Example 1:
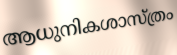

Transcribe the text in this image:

ആധുനികശാസ്ത്രം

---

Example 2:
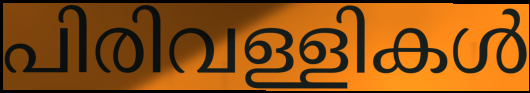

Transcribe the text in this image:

പിരിവള്ളികൾ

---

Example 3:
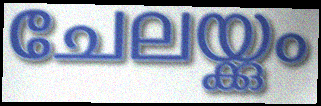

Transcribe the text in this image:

ചേലയ്ക്കും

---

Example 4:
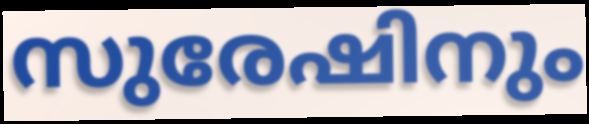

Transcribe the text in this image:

സുരേഷിനും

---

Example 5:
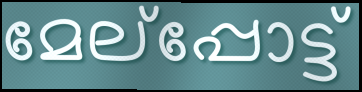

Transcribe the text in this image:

മേല്പ്പോട്ട്